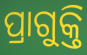
ପ୍ରାଗୁକ୍ତି